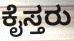
ಕೈಸ್ತರು